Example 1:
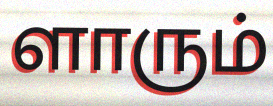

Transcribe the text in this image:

ளாரும்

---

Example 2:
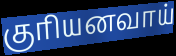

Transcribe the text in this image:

குரியனவாய்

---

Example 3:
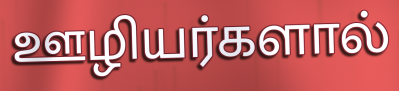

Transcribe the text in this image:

ஊழியர்களால்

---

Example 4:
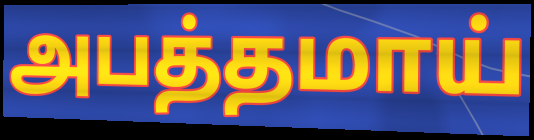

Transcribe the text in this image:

அபத்தமாய்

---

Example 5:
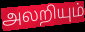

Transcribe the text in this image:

அலறியும்